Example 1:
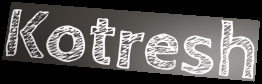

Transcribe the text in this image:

Kotresh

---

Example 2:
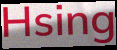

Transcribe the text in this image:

Hsing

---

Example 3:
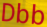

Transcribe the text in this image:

Dbb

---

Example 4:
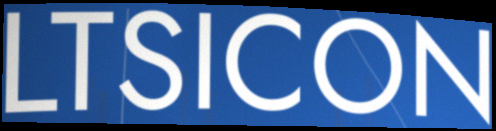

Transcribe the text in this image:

LTSICON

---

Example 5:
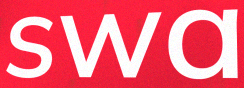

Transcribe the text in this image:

swa